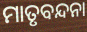
ମାତୃବନ୍ଦନା